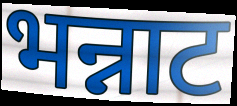
भन्नाट